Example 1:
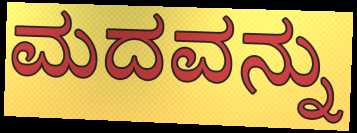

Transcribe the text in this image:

ಮದವನ್ನು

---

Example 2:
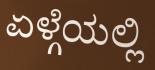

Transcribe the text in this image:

ಏಳ್ಗೆಯಲ್ಲಿ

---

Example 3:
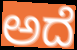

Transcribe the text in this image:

ಅದೆ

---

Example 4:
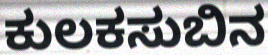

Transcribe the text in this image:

ಕುಲಕಸುಬಿನ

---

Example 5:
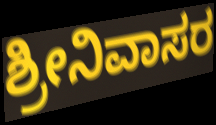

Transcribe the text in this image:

ಶ್ರೀನಿವಾಸರ